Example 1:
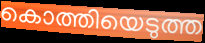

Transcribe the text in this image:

കൊത്തിയെടുത്ത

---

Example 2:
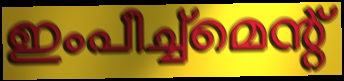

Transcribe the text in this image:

ഇംപീച്ച്മെന്റ്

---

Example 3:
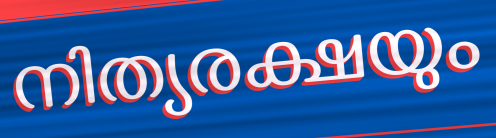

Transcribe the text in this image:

നിത്യരക്ഷയും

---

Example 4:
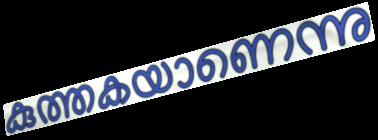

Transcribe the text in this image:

കുത്തകയാണെന്നു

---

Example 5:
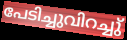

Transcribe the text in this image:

പേടിച്ചുവിറച്ചു്